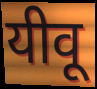
यीवू